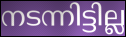
നടന്നിട്ടില്ല